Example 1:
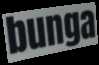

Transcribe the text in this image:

bunga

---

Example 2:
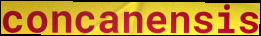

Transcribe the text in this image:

concanensis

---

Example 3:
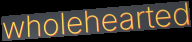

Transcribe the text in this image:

wholehearted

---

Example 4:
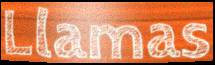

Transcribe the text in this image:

Llamas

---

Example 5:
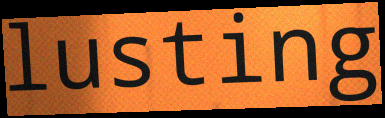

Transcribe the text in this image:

lusting